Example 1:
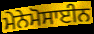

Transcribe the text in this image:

ਮੇਨੇਮੋਸਾਈਨ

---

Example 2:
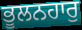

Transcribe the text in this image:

ਭੂਲਨਹਾਰੁ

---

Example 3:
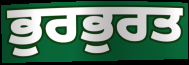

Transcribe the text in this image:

ਭੁਰਭੁਰਤ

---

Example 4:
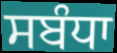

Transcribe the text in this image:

ਸਬੰਧਾ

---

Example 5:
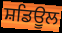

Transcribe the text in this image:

ਸ਼ਡਿਉੂਲ